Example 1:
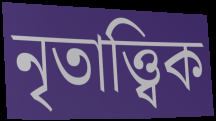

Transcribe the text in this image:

নৃতাত্ত্বিক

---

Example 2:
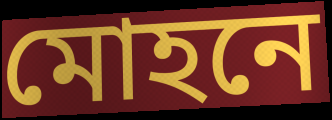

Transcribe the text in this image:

মোহনে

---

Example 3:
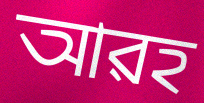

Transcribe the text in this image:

আৱহ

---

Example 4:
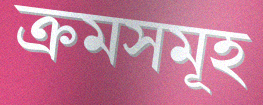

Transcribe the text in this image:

ক্ৰমসমূহ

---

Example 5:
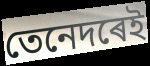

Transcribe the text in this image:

তেনেদৰেই